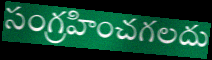
సంగ్రహించగలదు